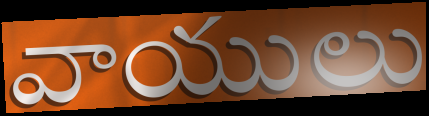
వాయులు